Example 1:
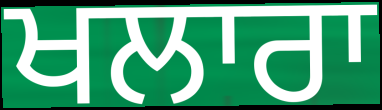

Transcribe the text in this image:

ਖਲਾਰਾ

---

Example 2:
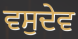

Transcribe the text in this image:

ਵਸੁਦੇਵ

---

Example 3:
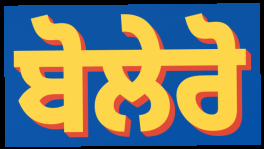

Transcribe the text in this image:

ਬੋਲੇਰੋ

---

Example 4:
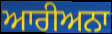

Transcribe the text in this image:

ਆਰੀਅਨਾ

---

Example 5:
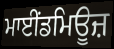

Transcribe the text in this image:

ਮਾਈਂਡਮਿਊਜ਼